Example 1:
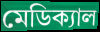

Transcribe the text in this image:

মেডিক্যাল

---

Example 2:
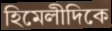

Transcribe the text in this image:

হিমেলীদিকে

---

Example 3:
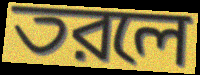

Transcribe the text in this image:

তরলে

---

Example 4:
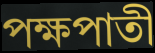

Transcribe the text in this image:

পক্ষপাতী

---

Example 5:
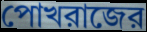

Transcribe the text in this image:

পোখরাজের